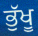
ਭੁੱਖੂ